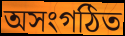
অসংগঠিত